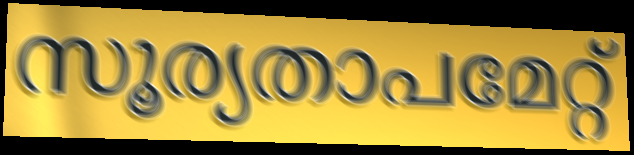
സൂര്യതാപമേറ്റ്